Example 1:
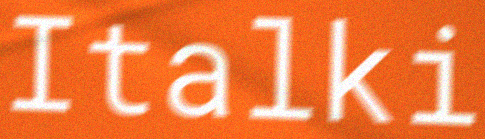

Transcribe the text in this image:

Italki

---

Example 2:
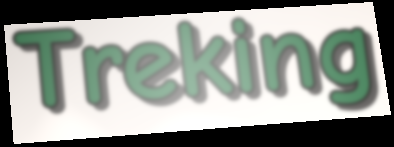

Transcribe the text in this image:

Treking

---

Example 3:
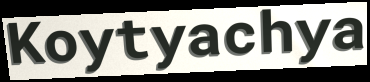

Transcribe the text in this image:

Koytyachya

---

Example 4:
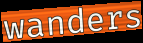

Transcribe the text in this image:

wanders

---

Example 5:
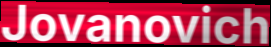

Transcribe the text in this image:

Jovanovich